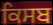
ਕਿਸਬ